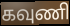
கவுணி